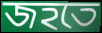
জহতে